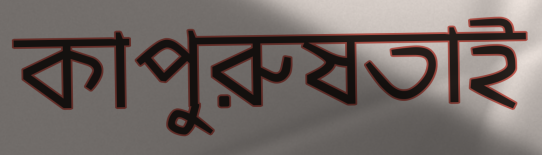
কাপুরুষতাই